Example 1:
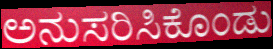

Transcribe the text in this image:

ಅನುಸರಿಸಿಕೊಂಡು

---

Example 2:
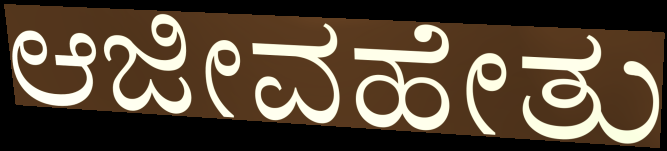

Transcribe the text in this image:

ಆಜೀವಹೇತು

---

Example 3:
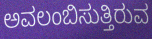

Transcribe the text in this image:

ಅವಲಂಬಿಸುತ್ತಿರುವ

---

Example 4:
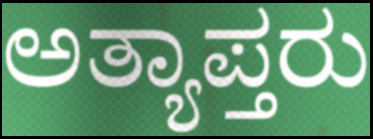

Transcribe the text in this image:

ಅತ್ಯಾಪ್ತರು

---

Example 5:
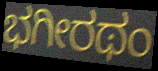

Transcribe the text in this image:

ಭಗೀರಥಂ